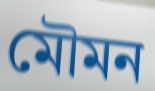
মৌমন